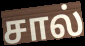
சால்